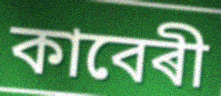
কাবেৰী